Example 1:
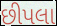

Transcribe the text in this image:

છીપલા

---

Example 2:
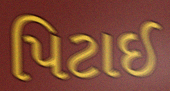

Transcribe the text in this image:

પિટાઈ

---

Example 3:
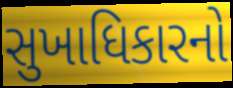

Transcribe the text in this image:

સુખાધિકારનો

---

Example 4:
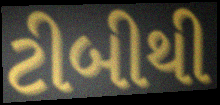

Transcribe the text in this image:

ટીબીથી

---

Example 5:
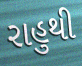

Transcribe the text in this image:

રાહુથી